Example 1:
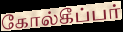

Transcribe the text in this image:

கோல்கீப்பர்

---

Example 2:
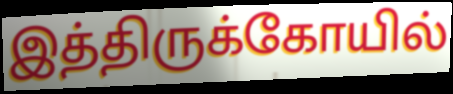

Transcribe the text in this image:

இத்திருக்கோயில்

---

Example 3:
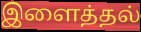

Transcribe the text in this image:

இளைத்தல்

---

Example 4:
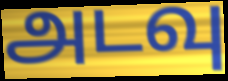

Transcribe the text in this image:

அடவு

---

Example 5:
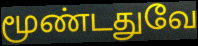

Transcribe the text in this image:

மூண்டதுவே